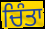
ਚਿੰਤਾ